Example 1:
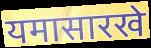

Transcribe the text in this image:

यमासारखे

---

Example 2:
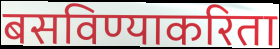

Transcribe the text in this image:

बसविण्याकरिता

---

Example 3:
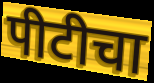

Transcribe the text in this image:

पीटीचा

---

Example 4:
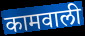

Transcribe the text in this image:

कामवाली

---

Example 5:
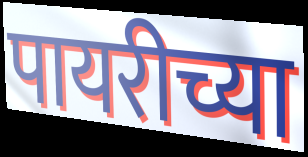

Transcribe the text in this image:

पायरीच्या